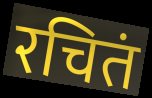
रचितं